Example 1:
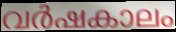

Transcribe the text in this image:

വർഷകാലം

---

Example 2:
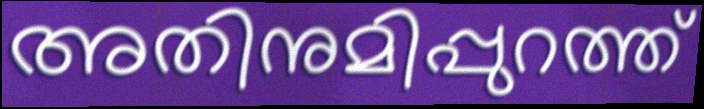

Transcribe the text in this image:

അതിനുമിപ്പുറത്ത്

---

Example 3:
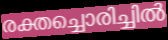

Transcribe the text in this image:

രക്തച്ചൊരിച്ചിൽ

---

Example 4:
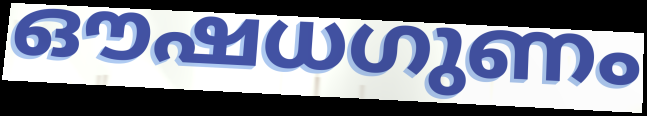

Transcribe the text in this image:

ഔഷധഗുണം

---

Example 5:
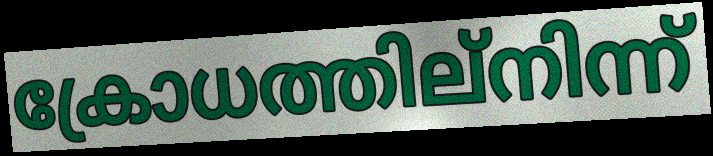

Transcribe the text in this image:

ക്രോധത്തില്നിന്ന്